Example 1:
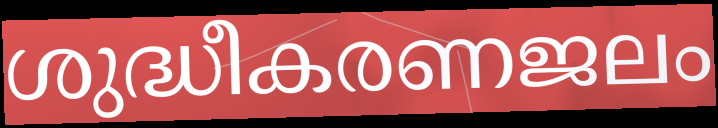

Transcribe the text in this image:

ശുദ്ധീകരണജലം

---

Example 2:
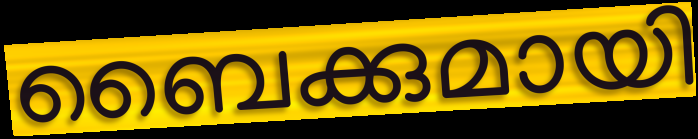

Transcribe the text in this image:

ബൈക്കുമായി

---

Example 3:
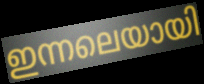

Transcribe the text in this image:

ഇന്നലെയായി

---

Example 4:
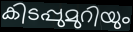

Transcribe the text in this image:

കിടപ്പുമുറിയും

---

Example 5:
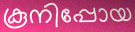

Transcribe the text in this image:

കൂനിപ്പോയ